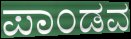
ಪಾಂಡವ